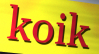
koik